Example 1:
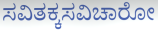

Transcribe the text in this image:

ಸವಿತಕ್ಕಸವಿಚಾರೋ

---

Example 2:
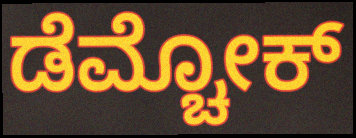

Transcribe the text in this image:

ಡೆಮ್ಚೋಕ್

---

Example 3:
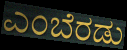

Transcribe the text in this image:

ಎಂಬೆರಡು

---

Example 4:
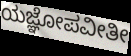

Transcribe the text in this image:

ಯಜ್ಞೋಪವೀತೀ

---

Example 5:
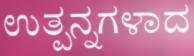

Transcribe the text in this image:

ಉತ್ಪನ್ನಗಳಾದ